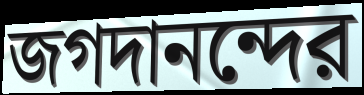
জগদানন্দের